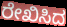
ರೇಖಿಸಿದ